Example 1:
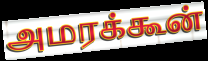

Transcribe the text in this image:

அமரக்கூன்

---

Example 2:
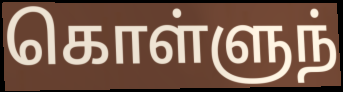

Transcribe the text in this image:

கொள்ளுந்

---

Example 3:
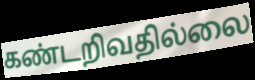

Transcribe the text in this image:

கண்டறிவதில்லை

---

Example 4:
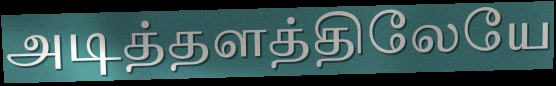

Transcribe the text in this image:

அடித்தளத்திலேயே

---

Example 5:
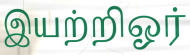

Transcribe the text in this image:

இயற்றிஓர்